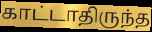
காட்டாதிருந்த